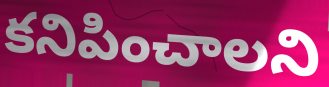
కనిపించాలని